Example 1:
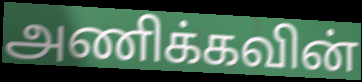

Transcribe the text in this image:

அணிக்கவின்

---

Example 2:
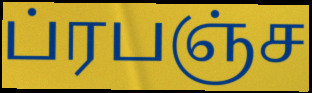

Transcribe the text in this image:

ப்ரபஞ்ச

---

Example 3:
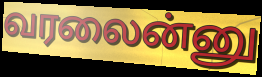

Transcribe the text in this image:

வரலைன்னு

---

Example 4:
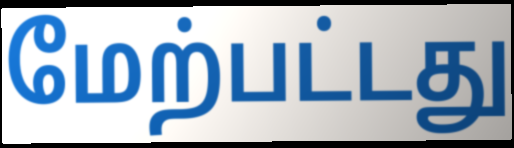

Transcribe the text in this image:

மேற்பட்டது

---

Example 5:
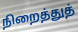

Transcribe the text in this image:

நிறைத்துத்